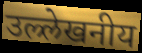
उल्लेखनीय